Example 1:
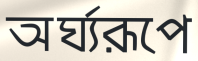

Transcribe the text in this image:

অর্ঘ্যরূপে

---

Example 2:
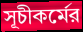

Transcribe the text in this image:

সূচীকর্মের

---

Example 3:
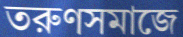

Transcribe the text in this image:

তরুণসমাজে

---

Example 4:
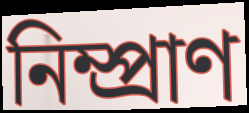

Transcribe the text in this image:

নিম্প্রাণ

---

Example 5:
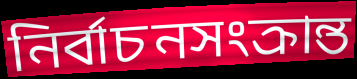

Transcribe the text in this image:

নির্বাচনসংক্রান্ত